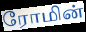
ரோமின்